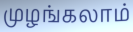
முழங்கலாம்